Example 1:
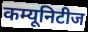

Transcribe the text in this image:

कम्यूनिटीज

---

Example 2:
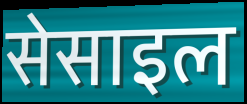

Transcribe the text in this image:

सेसाइल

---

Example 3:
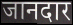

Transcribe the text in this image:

जानदार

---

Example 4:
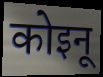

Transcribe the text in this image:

कोइनू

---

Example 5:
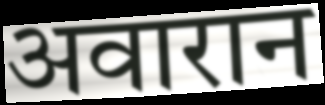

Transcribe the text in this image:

अवारान